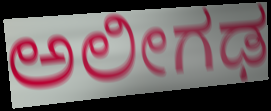
ಅಲೀಗಢ